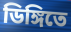
ডিঙ্গিতে